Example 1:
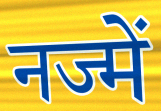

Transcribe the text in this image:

नज्में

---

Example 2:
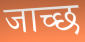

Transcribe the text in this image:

जाच्छ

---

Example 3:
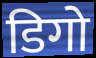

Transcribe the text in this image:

डिगो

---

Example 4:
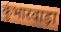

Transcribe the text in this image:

कुंभारवाड़ा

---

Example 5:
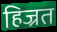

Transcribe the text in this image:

हिज्रत